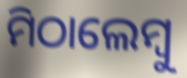
ମିଠାଲେମ୍ବୁ